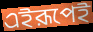
এইরূপেই